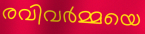
രവിവർമ്മയെ